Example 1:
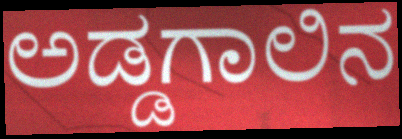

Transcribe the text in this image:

ಅಡ್ಡಗಾಲಿನ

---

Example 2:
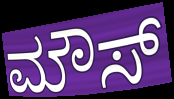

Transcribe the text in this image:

ಮೌಸ್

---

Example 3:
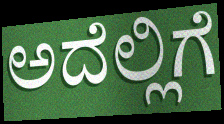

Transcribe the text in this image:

ಅದೆಲ್ಲಿಗೆ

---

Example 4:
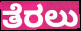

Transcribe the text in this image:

ತೆರಲು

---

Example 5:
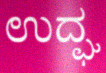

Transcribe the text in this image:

ಉದ್ಘ